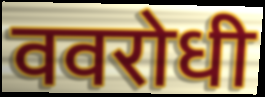
ववरोधी